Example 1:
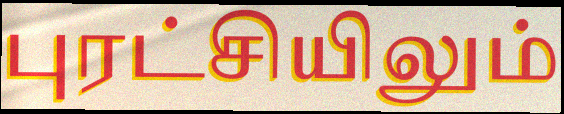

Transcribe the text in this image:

புரட்சியிலும்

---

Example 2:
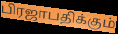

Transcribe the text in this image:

பிரஜாபதிக்கும்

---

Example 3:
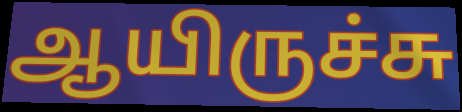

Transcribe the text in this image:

ஆயிருச்சு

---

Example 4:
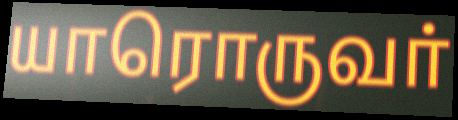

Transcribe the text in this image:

யாரொருவர்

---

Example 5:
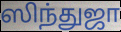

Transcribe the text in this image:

ஸிந்துஜா